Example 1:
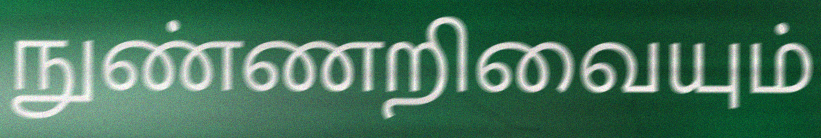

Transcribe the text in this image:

நுண்ணறிவையும்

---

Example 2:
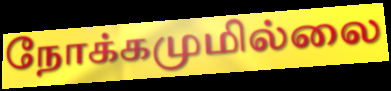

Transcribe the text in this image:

நோக்கமுமில்லை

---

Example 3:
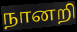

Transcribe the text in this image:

நானறி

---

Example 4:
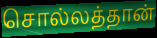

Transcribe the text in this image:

சொல்லத்தான்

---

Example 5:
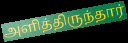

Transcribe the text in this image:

அளித்திருந்தார்